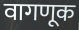
वागणूक